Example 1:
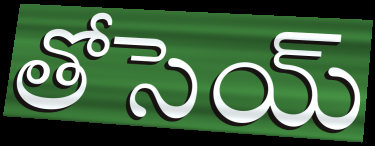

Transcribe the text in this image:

తోసెయ్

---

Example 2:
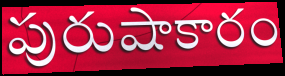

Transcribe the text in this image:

పురుషాకారం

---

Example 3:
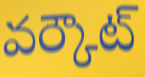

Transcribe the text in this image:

వర్కౌట్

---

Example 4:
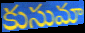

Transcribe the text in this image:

కుసుమా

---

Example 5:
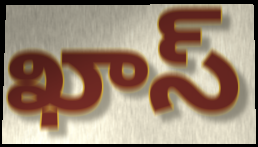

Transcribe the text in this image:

ఖాస్